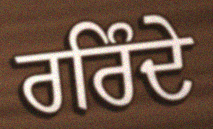
ਰਰਿੰਦੇ